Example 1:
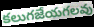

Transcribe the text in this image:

కలుగజేయగలవు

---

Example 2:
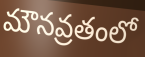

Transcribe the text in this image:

మౌనవ్రతంలో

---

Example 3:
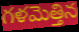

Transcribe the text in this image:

గళమెత్తిన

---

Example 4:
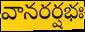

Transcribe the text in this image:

వానరర్షభః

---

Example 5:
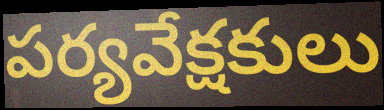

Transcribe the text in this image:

పర్యవేక్షకులు